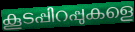
കൂടപ്പിറപ്പുകളെ